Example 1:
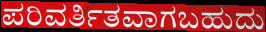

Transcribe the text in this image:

ಪರಿವರ್ತಿತವಾಗಬಹುದು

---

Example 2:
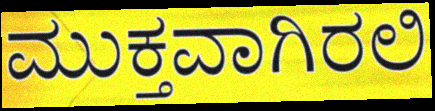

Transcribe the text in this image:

ಮುಕ್ತವಾಗಿರಲಿ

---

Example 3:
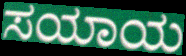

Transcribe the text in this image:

ಸಯಾಯ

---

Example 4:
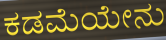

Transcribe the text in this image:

ಕಡಮೆಯೇನು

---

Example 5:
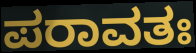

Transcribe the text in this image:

ಪರಾವತಃ